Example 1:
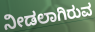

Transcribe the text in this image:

ನೀಡಲಾಗಿರುವ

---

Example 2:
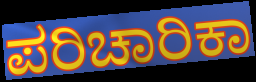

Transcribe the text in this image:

ಪರಿಚಾರಿಕಾ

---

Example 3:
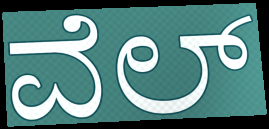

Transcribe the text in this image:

ವೆಲ್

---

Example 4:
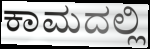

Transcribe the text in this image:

ಕಾಮದಲ್ಲಿ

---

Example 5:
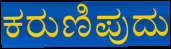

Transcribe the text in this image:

ಕರುಣಿಪುದು